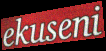
ekuseni